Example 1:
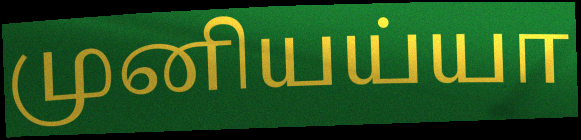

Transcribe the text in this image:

முனியய்யா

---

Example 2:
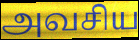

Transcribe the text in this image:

அவசிய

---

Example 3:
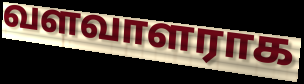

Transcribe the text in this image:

வளவாளராக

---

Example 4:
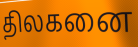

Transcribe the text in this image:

திலகனை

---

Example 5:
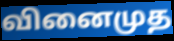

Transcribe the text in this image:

வினைமுத